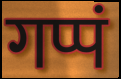
गप्पं